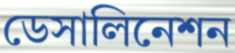
ডেসালিনেশন